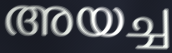
അയച്ച